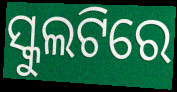
ସ୍କୁଲଟିରେ